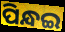
ପିନ୍ଧଇ